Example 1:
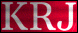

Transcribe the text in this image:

KRJ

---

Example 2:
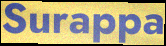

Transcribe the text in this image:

Surappa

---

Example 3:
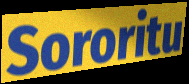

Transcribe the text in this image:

Sororitu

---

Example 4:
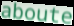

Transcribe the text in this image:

aboute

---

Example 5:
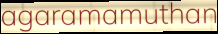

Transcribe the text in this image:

agaramamuthan